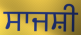
ਸਾਜਸ਼ੀ